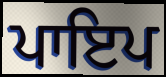
ਪਾਇਪ